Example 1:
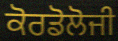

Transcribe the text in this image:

ਕੋਰਡੋਲੋਜੀ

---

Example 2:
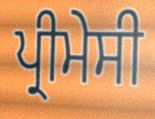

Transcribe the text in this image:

ਪ੍ਰੀਮੇਸੀ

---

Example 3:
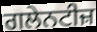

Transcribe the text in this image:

ਗਲੇਨਟੀਜ਼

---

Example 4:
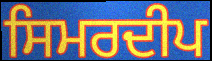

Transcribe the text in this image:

ਸਿਮਰਦੀਪ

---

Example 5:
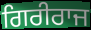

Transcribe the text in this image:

ਗਿਰੀਰਾਜ